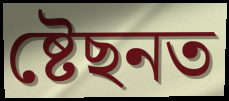
ষ্টেছনত